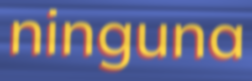
ninguna